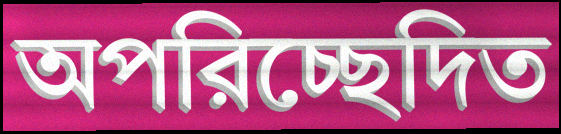
অপরিচ্ছেদিত